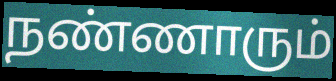
நண்ணாரும்